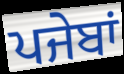
ਪਜੇਬਾਂ